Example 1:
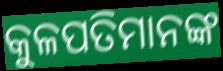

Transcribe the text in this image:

କୁଳପତିମାନଙ୍କ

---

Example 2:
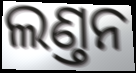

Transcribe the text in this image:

ଲଣ୍ତନ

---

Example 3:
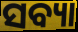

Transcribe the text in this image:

ସବ୍ୟା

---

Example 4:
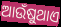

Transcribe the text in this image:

ଆଉଁଷୁଥାଏ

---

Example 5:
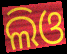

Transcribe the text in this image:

ଲିଓ